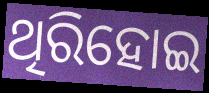
ଥିରିହୋଇ